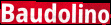
Baudolino